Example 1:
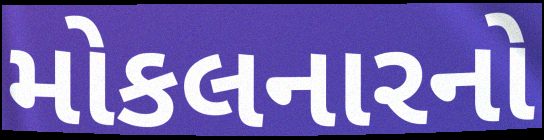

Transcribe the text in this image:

મોકલનારનો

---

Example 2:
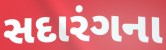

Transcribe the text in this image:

સદારંગના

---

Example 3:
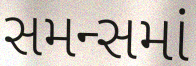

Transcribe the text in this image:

સમન્સમાં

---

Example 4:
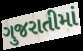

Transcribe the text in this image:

ગુજરાતીમાં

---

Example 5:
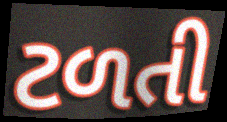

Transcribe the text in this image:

ટળતી